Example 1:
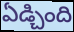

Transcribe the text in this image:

ఏడ్చింది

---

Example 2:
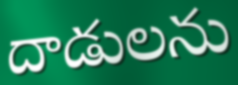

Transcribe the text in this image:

దాడులను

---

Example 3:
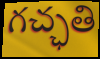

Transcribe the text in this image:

గచ్ఛతి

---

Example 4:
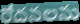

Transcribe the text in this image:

రోదనలను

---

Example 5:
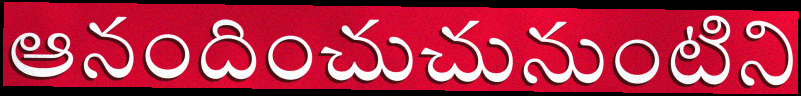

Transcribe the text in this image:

ఆనందించుచునుంటిని